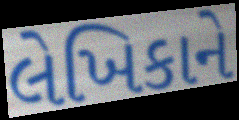
લેખિકાને